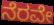
ನೆರವೇ